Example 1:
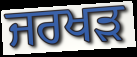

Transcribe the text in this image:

ਜਰਖੜ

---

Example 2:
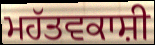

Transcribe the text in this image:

ਮਹੱਤਵਕਾਸ਼ੀ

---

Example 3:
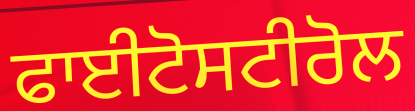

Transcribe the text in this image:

ਫਾਈਟੋਸਟੀਰੋਲ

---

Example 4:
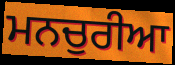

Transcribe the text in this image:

ਮਨਚੁਰੀਆ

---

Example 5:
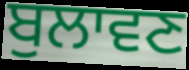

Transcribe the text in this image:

ਬੁਲਾਵਣ